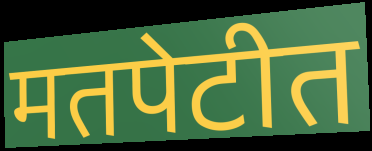
मतपेटीत